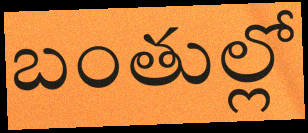
బంతుల్లో